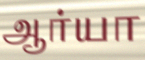
ஆர்யா